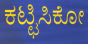
ಕಟ್ಟಿಸಿಕೋ